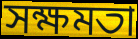
সক্ষমতা